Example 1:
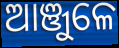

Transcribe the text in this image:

ଆଞ୍ଜୁଳେ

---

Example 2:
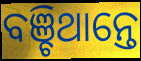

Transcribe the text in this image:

ବଞ୍ଚିଥାନ୍ତେ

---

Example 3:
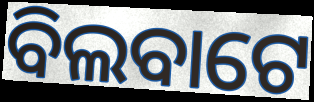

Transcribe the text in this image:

ବିଲବାଟେ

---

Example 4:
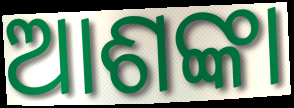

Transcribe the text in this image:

ଆଶଙ୍କା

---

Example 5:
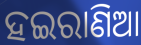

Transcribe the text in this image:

ହଇରାଣିଆ